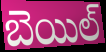
బెయిల్